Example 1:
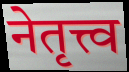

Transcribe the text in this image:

नेतृत्त्व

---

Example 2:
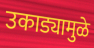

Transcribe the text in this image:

उकाड्यामुळे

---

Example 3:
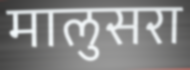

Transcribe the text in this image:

मालुसरा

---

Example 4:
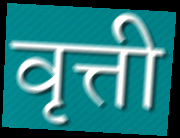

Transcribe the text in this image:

वृत्ती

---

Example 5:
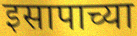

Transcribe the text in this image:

इसापाच्या